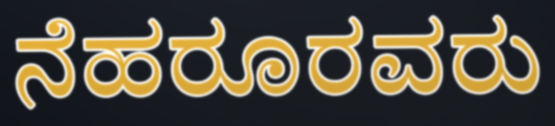
ನೆಹರೂರವರು